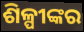
ଶିଳ୍ପୀଙ୍କର